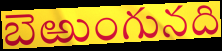
బెఱుంగునది